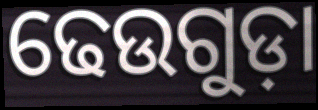
ଢେଉଗୁଡ଼ା